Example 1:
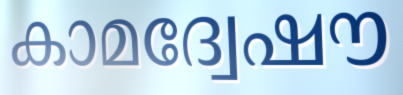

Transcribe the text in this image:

കാമദ്വേഷൗ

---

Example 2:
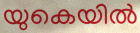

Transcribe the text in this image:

യുകെയിൽ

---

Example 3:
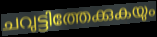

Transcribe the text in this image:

ചവുട്ടിത്തേക്കുകയും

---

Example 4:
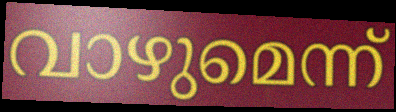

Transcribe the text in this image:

വാഴുമെന്ന്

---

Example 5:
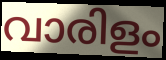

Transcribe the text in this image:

വാരിളം